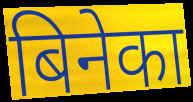
बिनेका